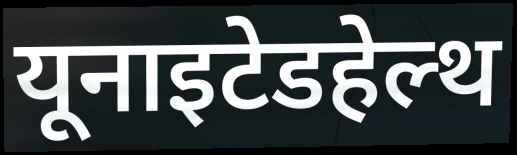
यूनाइटेडहेल्थ